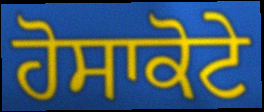
ਹੋਸਾਕੋਟੇ